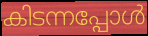
കിടന്നപ്പോൾ